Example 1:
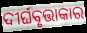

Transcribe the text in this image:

ଦୀର୍ଘବୃତ୍ତାକାର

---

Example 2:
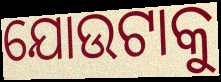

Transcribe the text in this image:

ଯୋଉଟାକୁ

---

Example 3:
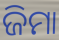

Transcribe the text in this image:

ଜିମା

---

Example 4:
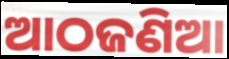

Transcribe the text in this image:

ଆଠଜଣିଆ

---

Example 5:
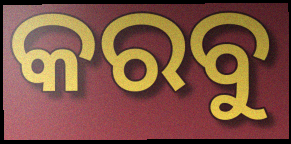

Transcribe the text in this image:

କରବୁ